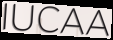
IUCAA